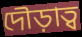
দৌড়াত্ব